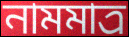
নামমাত্র